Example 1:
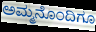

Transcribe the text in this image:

ಅಮ್ಮನೊಂದಿಗೂ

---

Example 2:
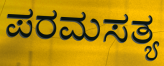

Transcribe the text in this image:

ಪರಮಸತ್ಯ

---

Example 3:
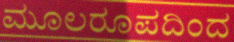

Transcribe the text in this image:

ಮೂಲರೂಪದಿಂದ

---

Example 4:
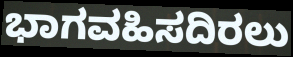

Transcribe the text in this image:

ಭಾಗವಹಿಸದಿರಲು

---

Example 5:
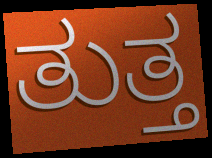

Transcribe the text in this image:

ತುತ್ತ